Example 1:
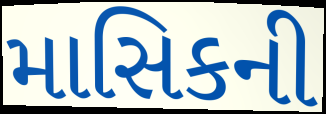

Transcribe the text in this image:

માસિકની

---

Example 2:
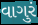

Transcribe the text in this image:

વાગુરં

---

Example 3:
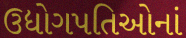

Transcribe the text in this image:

ઉદ્યોગપતિઓનાં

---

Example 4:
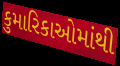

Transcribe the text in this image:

કુમારિકાઓમાંથી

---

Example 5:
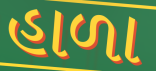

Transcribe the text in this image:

હાળા